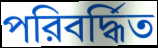
পরিবর্দ্ধিত